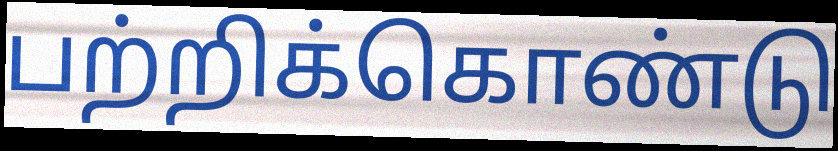
பற்றிக்கொண்டு